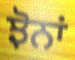
ਝੋਨਾਂ